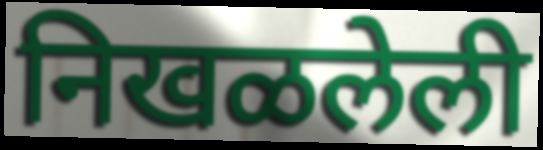
निखळलेली